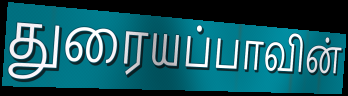
துரையப்பாவின்